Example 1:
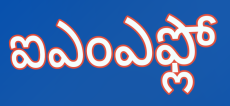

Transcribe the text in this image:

ఐఎంఎఫ్లో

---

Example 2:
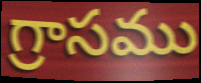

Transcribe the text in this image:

గ్రాసము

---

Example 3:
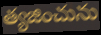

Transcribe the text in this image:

త్యజించును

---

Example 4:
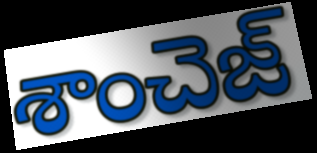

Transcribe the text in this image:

శాంచెజ్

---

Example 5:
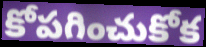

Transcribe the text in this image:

కోపగించుకోక